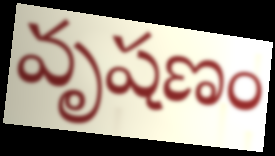
వృషణం